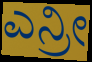
ಎನ್ರೀ